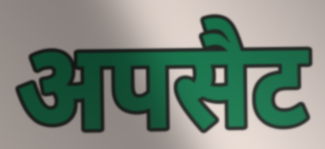
अपसैट